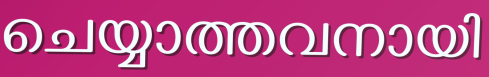
ചെയ്യാത്തവനായി